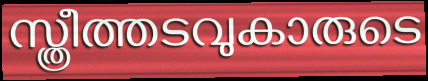
സ്ത്രീത്തടവുകാരുടെ